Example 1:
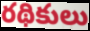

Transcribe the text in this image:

రథికులు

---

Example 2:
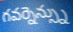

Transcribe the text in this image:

గవర్నెన్స్ను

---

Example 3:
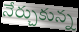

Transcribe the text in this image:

నేర్చుకున్న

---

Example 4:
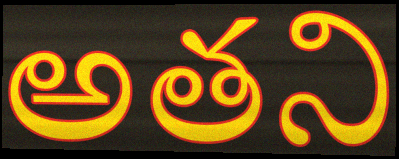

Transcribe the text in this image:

అతని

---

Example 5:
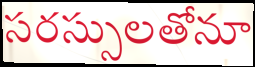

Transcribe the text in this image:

సరస్సులతోనూ